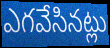
ఎగవేసినట్లు